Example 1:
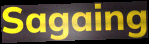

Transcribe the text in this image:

Sagaing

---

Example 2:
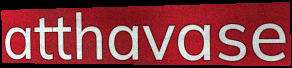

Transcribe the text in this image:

atthavase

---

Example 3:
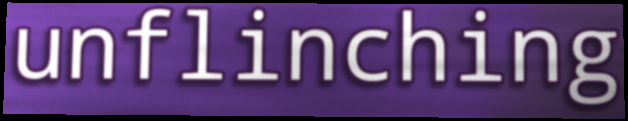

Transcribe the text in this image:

unflinching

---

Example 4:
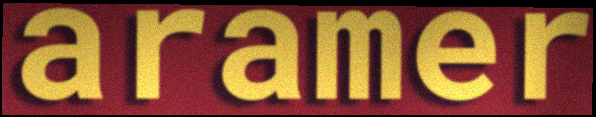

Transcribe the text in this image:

aramer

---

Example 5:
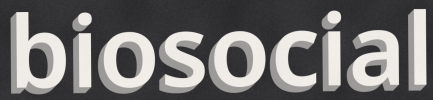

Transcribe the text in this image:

biosocial